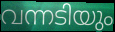
വന്നടിയും